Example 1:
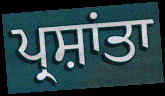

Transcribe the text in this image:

ਪ੍ਰਸ਼ਾਂਤਾ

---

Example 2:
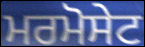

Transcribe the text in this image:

ਮਰਮੋਸੇਟ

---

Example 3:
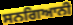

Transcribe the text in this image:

ਸਨਗਿਆਨੀ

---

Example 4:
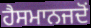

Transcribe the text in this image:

ਹੈਸਮਾਨਜਦੋਂ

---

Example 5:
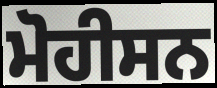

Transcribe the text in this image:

ਮੋਹੀਸਨ